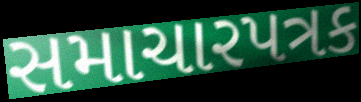
સમાચારપત્રક